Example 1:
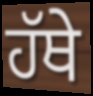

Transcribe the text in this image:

ਹੱਥੇ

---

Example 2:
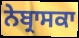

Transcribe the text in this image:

ਨੇਬ੍ਰਾਸਕਾ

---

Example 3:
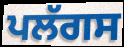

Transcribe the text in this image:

ਪਲੱਗਸ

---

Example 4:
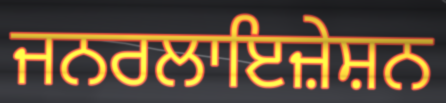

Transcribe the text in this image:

ਜਨਰਲਾਇਜ਼ੇਸ਼ਨ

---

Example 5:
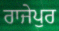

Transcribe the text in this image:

ਰਾਜੇਪੁਰ